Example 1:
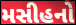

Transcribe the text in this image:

મસીહનો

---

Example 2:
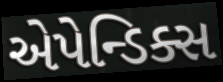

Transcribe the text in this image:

એપેન્ડિક્સ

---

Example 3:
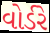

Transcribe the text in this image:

વોર્ડરે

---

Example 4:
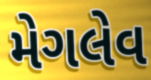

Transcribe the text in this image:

મેગલેવ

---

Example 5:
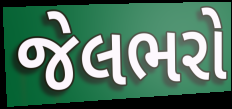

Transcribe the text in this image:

જેલભરો